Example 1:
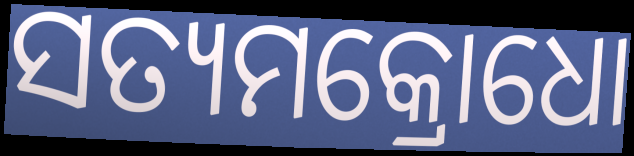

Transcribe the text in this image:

ସତ୍ୟମକ୍ରୋଧୋ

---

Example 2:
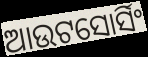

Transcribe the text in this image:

ଆଉଟସୋର୍ସିଂ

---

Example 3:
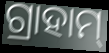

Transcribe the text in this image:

ଗ୍ରାହାମ୍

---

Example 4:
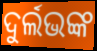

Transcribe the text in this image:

ଦୁର୍ଲଭଙ୍କ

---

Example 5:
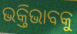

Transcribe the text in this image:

ଭକ୍ତିଭାବକୁ